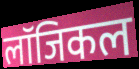
लॉजिकल